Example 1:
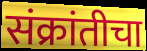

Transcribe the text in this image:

संक्रांतीचा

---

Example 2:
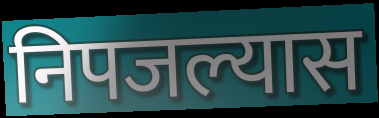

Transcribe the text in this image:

निपजल्यास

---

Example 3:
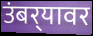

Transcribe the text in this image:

उंबर्‍यावर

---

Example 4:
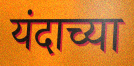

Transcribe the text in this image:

यंदाच्या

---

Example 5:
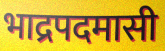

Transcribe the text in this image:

भाद्रपदमासी